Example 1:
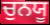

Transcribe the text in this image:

ਚੁਨਯੂ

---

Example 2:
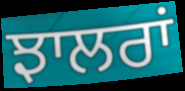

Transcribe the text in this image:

ਝਾਲਰਾਂ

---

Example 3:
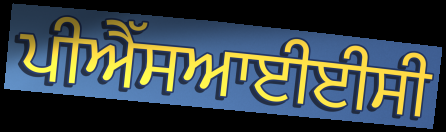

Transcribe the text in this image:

ਪੀਐੱਸਆਈਈਸੀ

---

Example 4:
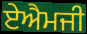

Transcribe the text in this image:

ਏਐਮਜੀ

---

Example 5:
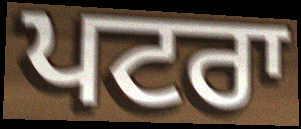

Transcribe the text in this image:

ਪਟਰਾ